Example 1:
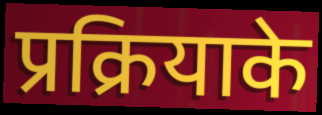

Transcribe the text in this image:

प्रक्रियाके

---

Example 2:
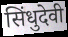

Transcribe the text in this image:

सिंधुदेवी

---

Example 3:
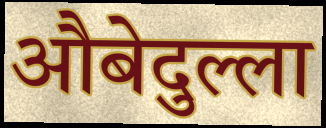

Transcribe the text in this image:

औबेदुल्ला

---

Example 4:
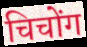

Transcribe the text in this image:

चिचोंग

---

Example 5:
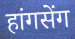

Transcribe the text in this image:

हांगसेंग